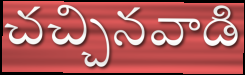
చచ్చినవాడి